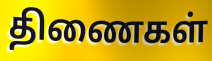
திணைகள்